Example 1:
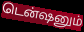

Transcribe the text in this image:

டென்ஷனும்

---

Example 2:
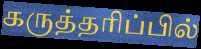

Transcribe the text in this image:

கருத்தரிப்பில்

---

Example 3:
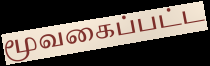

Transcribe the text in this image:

மூவகைப்பட்ட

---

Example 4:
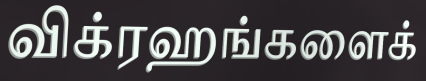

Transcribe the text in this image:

விக்ரஹங்களைக்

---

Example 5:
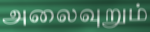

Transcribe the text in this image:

அலைவுறும்